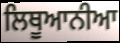
ਲਿਥੂਆਨੀਆ